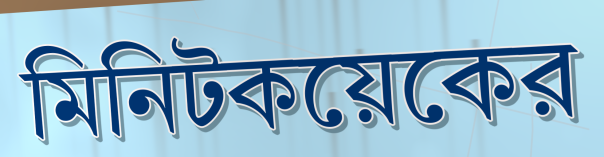
মিনিটকয়েকের